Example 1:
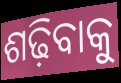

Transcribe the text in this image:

ଶଢ଼ିବାକୁ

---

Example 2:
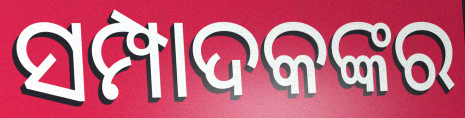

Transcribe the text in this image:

ସମ୍ପାଦକଙ୍କର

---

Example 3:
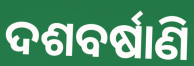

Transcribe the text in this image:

ଦଶବର୍ଷାଣି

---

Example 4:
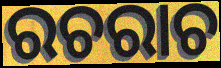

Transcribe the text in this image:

ରଚରାଚ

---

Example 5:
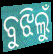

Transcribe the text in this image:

ବୁଝିଲୁଁ